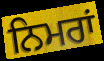
ਨਿਮਰਾਂ